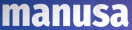
manusa